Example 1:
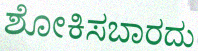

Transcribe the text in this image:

ಶೋಕಿಸಬಾರದು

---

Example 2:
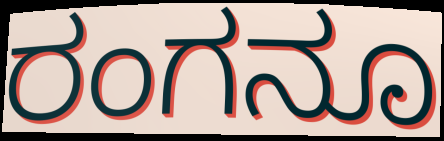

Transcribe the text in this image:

ರಂಗನೂ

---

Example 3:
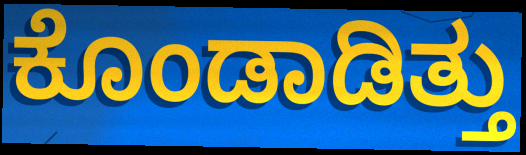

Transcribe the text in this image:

ಕೊಂಡಾಡಿತ್ತು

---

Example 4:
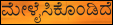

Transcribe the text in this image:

ಮೇಳೈಸಿಕೊಂಡಿದೆ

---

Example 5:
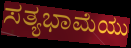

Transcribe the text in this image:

ಸತ್ಯಭಾಮೆಯು